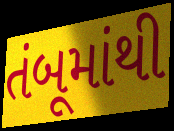
તંબૂમાંથી